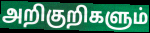
அறிகுறிகளும்